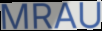
MRAU